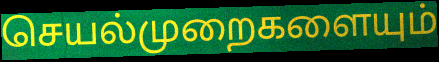
செயல்முறைகளையும்